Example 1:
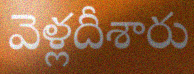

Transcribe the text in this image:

వెళ్లదీశారు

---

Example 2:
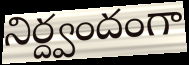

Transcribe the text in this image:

నిర్ద్వందంగా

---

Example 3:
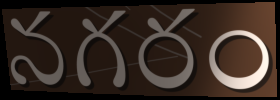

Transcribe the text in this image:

నగరం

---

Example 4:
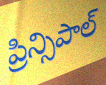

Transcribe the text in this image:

ప్రిన్సిపాల్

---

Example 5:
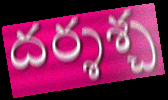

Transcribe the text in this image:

దర్శశ్చ